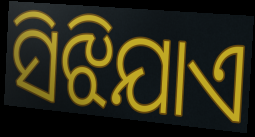
ସିଝିଯାଏ